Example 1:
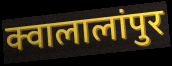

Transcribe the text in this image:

क्वालालांपुर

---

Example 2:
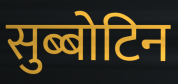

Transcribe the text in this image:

सुब्बोटिन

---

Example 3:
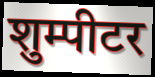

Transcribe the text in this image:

शुम्पीटर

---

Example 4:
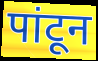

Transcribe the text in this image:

पांटून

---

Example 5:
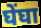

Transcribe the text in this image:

घेंघा